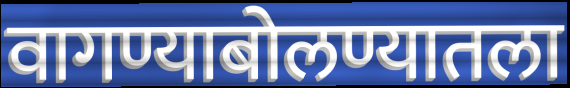
वागण्याबोलण्यातला